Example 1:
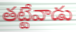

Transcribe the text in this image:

తట్టేవాడు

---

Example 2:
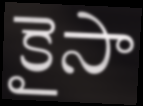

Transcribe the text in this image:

కైసా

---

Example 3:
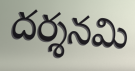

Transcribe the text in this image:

దర్శనమి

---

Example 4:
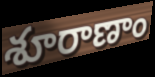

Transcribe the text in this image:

శూరాణాం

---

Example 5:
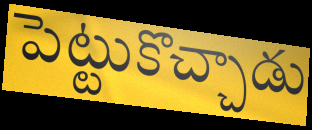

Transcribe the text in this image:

పెట్టుకొచ్చాడు